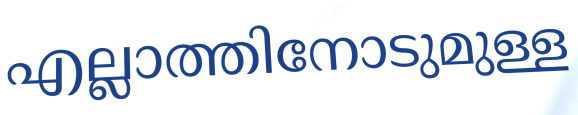
എല്ലാത്തിനോടുമുള്ള